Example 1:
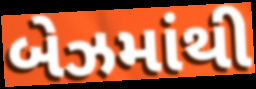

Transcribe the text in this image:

બેઝમાંથી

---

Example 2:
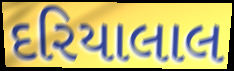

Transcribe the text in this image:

દરિયાલાલ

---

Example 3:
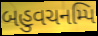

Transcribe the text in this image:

બહુવચનમ્પિ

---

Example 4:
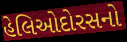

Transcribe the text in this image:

હેલિઓદોરસનો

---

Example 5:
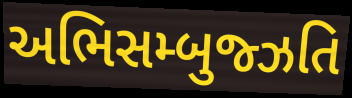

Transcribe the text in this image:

અભિસમ્બુજ્ઝતિ